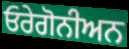
ਓਰੇਗੋਨੀਅਨ